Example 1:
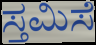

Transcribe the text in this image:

ಸ್ತಮಿಸೆ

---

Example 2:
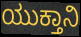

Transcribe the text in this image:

ಯುಕ್ತಾನಿ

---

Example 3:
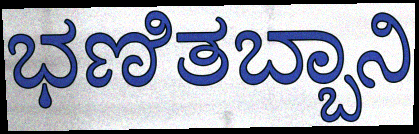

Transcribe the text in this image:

ಭಣಿತಬ್ಬಾನಿ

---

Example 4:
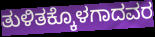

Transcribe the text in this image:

ತುಳಿತಕ್ಕೊಳಗಾದವರ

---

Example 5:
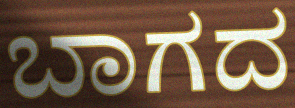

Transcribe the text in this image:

ಬಾಗದ